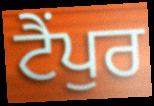
ਟੈਂਪੁਰ